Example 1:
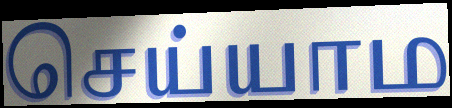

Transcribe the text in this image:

செய்யாம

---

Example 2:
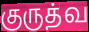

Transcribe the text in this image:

குருத்வ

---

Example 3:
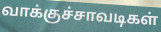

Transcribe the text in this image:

வாக்குச்சாவடிகள்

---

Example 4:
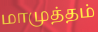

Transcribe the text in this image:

மாமுத்தம்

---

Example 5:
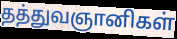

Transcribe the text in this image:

தத்துவஞானிகள்